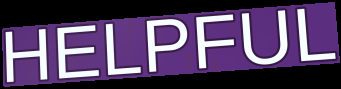
HELPFUL